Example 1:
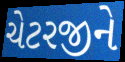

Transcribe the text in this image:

ચેટરજીને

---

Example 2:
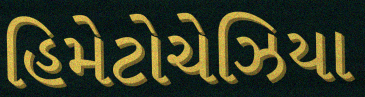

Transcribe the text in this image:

હિમેટોચેઝિયા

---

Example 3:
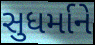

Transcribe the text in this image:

સુધર્માને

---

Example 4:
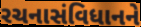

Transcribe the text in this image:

રચનાસંવિધાનને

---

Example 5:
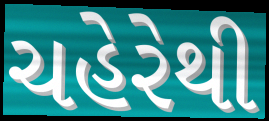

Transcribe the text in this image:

ચહેરેથી